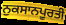
ਨੁਕਸਾਨਪੂਰਤੀ